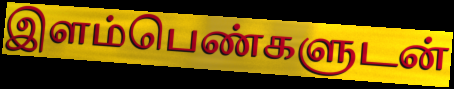
இளம்பெண்களுடன்